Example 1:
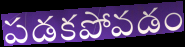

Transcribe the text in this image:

పడకపోవడం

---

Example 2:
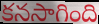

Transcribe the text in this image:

కనసాగింది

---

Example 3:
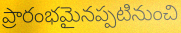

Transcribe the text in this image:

ప్రారంభమైనప్పటినుంచి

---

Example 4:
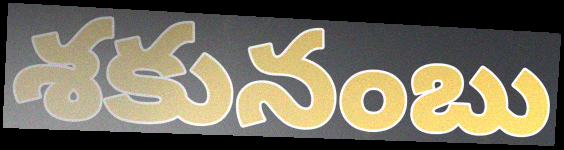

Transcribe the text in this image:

శకునంబు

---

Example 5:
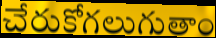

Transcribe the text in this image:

చేరుకోగలుగుతాం